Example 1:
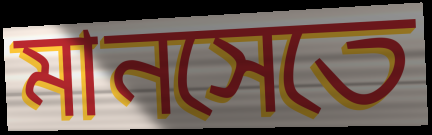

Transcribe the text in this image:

মানসেতে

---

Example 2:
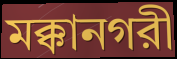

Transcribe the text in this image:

মক্কানগরী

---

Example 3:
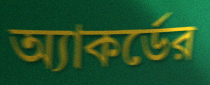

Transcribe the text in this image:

অ্যাকর্ডের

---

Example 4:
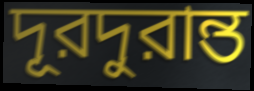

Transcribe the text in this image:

দূরদুরান্ত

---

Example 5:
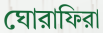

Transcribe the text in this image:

ঘোরাফিরা